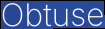
Obtuse